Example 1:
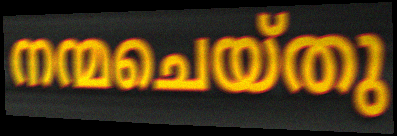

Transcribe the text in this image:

നന്മചെയ്തു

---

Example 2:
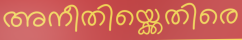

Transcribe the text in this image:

അനീതിയ്ക്കെതിരെ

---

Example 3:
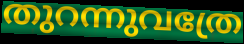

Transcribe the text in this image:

തുറന്നുവത്രേ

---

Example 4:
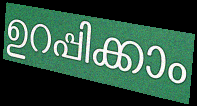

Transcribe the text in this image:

ഉറപ്പിക്കാം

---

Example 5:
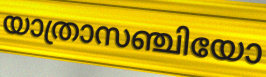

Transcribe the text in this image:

യാത്രാസഞ്ചിയോ